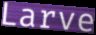
Larve